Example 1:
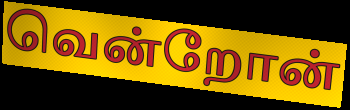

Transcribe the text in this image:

வென்றோன்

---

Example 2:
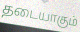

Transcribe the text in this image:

தடையாகும்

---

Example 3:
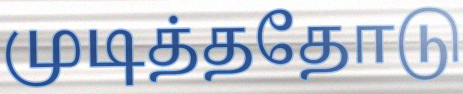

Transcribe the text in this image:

முடித்ததோடு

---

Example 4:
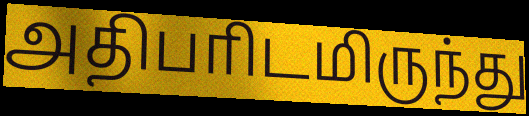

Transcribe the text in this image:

அதிபரிடமிருந்து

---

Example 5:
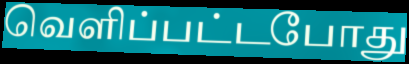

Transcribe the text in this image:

வெளிப்பட்டபோது